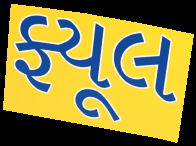
ફ્યૂલ